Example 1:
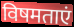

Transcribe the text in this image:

विषमताएं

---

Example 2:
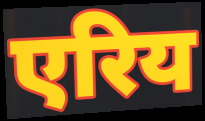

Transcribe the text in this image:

एरिय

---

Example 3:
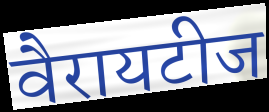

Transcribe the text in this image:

वैरायटीज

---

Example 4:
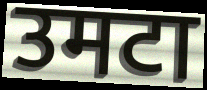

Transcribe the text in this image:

उमटा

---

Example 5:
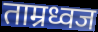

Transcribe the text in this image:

ताम्रध्वज